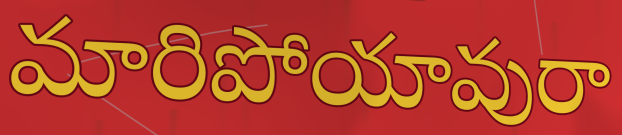
మారిపోయావురా